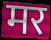
मर